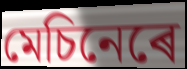
মেচিনেৰে